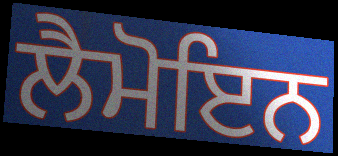
ਲੈਮੋਇਨ